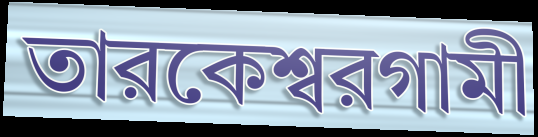
তারকেশ্বরগামী